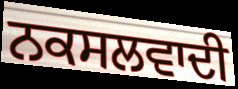
ਨਕਸਲਵਾਦੀ